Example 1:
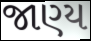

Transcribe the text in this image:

જાણ્ય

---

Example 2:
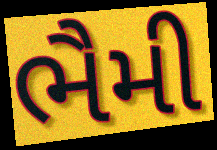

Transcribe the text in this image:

ભૈમી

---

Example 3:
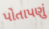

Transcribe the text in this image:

પોતાપણું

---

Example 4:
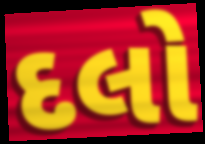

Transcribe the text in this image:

દલો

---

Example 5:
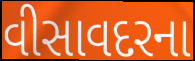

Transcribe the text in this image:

વીસાવદરના